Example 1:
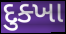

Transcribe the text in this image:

દુક્ખા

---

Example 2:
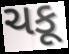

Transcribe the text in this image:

ચકૂ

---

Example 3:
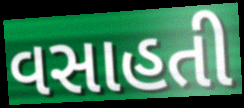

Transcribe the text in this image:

વસાહતી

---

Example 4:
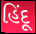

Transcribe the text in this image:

હિંદૂ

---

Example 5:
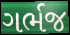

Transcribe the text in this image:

ગર્ભજ